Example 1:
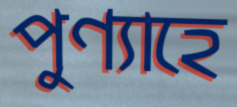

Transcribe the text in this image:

পুণ্যাহে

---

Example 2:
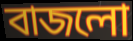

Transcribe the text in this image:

বাজলো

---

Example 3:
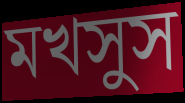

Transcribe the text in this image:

মখসুস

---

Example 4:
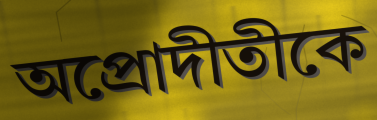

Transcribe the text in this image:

অপ্রোদীতীকে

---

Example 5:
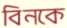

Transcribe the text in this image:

বিনকে